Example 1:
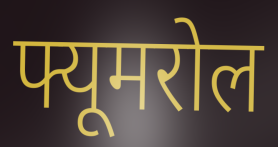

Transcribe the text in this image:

फ्यूमरोल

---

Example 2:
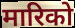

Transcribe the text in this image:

मारिको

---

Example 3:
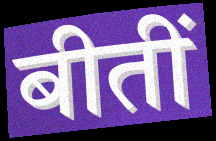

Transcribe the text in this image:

बीतीं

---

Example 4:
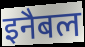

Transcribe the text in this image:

इनैबल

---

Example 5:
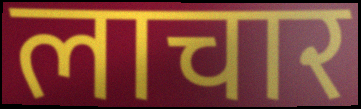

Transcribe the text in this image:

लाचार